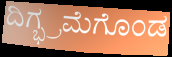
ದಿಗ್ಭ್ರಮೆಗೊಂಡ